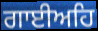
ਗਾਈਅਹਿ